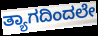
ತ್ಯಾಗದಿಂದಲೇ